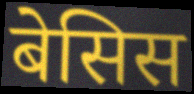
बेसिस